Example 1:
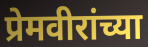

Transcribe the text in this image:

प्रेमवीरांच्या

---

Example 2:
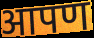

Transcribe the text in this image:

आपण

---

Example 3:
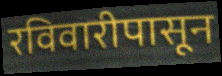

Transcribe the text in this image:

रविवारीपासून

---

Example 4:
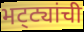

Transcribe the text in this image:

भट्ट्यांची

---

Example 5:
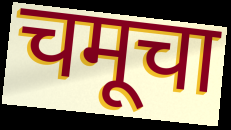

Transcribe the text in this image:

चमूचा